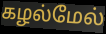
கழல்மேல்